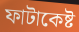
ফাটাকেষ্ট